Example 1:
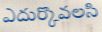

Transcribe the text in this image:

ఎదుర్కొవలసి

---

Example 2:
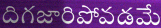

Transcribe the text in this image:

దిగజారిపోవడమే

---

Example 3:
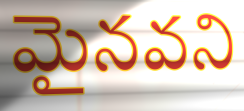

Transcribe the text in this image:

మైనవని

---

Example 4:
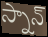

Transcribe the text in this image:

స్నాన్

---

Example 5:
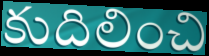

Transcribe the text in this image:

కుదిలించి